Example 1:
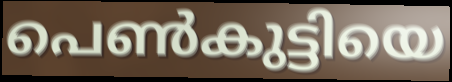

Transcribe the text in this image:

പെൺകുട്ടിയെ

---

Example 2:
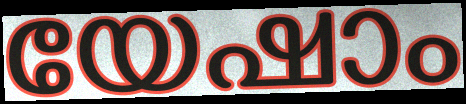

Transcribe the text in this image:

യേഷാം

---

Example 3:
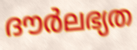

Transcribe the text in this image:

ദൗർലഭ്യത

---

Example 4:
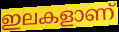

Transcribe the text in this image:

ഇലകളാണ്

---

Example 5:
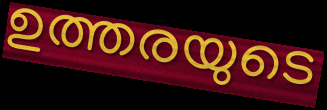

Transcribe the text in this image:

ഉത്തരയുടെ